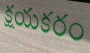
క్షయకరం